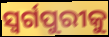
ସ୍ୱର୍ଗପୁରୀକୁ